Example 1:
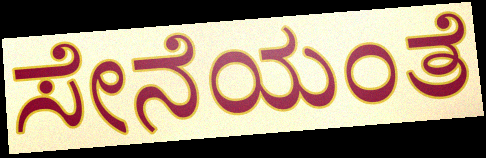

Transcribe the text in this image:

ಸೇನೆಯಂತೆ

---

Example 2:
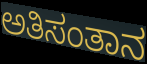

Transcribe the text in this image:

ಅತಿಸಂತಾನ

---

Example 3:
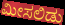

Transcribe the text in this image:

ಮೀಸಲಿಡು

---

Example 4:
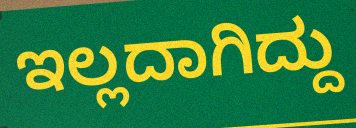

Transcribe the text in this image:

ಇಲ್ಲದಾಗಿದ್ದು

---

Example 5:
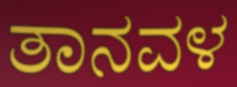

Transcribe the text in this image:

ತಾನವಳ